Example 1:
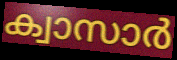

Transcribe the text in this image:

ക്വാസാർ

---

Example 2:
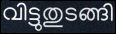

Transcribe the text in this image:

വിട്ടുതുടങ്ങി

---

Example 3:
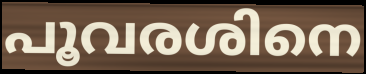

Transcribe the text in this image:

പൂവരശിനെ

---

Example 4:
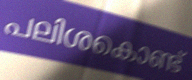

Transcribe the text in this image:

പലിശകൊണ്ട്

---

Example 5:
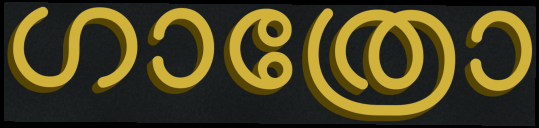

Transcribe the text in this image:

ഗാത്രോ